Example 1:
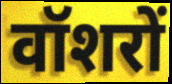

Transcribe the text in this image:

वॉशरों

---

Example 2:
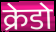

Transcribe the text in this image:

क्रेडो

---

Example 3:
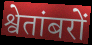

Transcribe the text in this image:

श्वेतांबरों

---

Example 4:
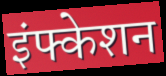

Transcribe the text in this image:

इंफ्केशन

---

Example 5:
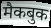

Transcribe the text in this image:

मैकबुक